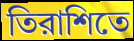
তিরাশিতে